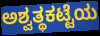
ಅಶ್ವತ್ಥಕಟ್ಟೆಯ